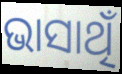
ଭାସାଥିଁ